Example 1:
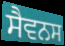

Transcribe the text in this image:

ਸੈਵਨਸ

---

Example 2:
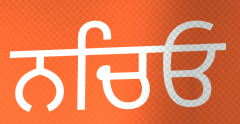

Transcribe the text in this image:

ਨਚਿਓ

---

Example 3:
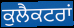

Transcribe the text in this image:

ਕੁਲੈਕਟਰਾਂ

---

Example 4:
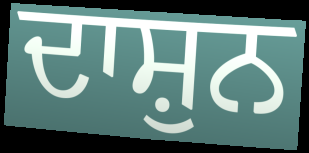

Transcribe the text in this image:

ਦਾਸ਼ੁਨ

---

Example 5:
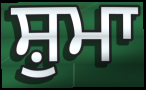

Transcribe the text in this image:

ਸ਼ੁਮਾ